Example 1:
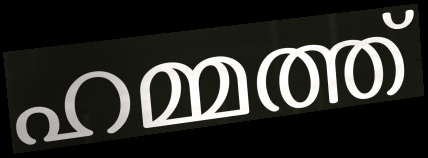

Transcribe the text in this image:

ഹമ്മത്ത്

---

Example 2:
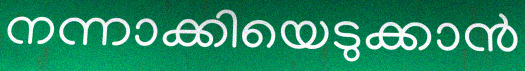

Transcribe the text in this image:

നന്നാക്കിയെടുക്കാൻ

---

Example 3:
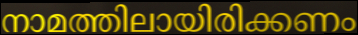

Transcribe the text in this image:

നാമത്തിലായിരിക്കണം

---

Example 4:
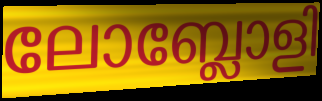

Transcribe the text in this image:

ലോബ്ലോളി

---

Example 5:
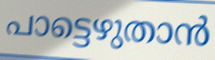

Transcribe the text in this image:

പാട്ടെഴുതാൻ